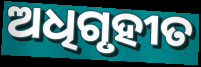
ଅଧିଗୃହୀତ